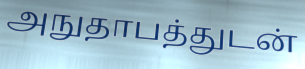
அநுதாபத்துடன்